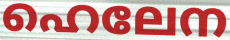
ഹെലേന